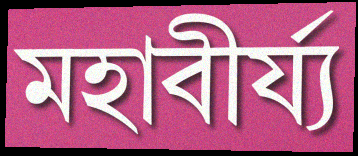
মহাবীর্য্য